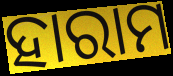
ହାରାମ